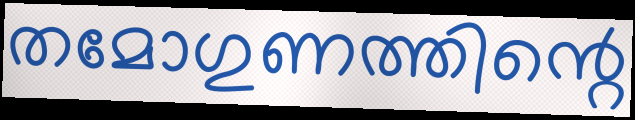
തമോഗുണത്തിന്റെ